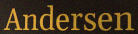
Andersen